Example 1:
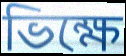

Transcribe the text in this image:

ভিক্ষে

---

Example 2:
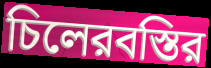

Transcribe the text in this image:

চিলেরবস্তির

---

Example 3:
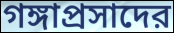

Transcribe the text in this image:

গঙ্গাপ্রসাদের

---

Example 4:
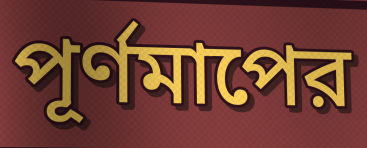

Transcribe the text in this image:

পূর্ণমাপের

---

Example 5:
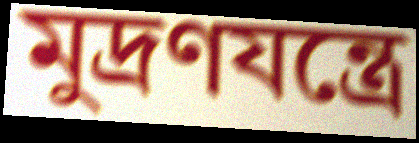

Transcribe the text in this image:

মুদ্রণযন্ত্রে